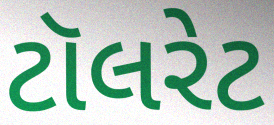
ટૉલરેટ